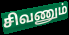
சிவணும்